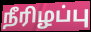
நீரிழப்பு